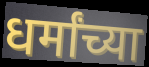
धर्मांच्या